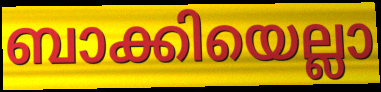
ബാക്കിയെല്ലാ